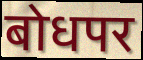
बोधपर